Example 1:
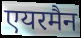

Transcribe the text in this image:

एयरमैन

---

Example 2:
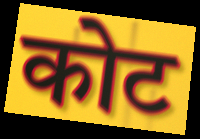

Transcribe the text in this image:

कोट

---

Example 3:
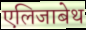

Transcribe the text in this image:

एलिजाबेथ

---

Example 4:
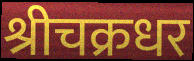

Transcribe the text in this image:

श्रीचक्रधर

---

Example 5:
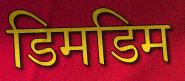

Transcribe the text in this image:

डिमडिम